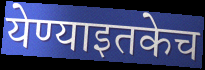
येण्याइतकेच